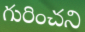
గురించని